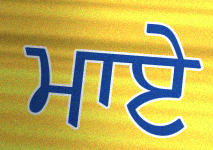
ਮਾਏ